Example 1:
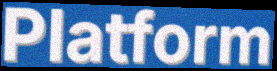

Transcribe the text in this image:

Platform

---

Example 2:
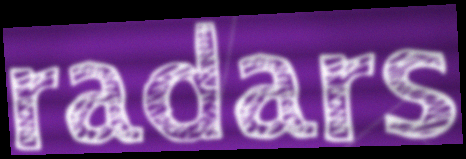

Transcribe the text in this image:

radars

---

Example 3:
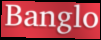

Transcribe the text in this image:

Banglo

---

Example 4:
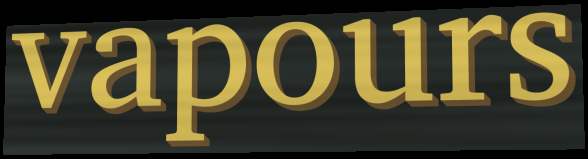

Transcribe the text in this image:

vapours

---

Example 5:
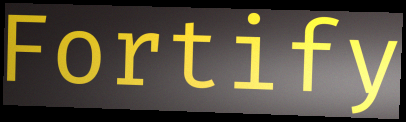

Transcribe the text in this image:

Fortify